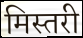
मिस्तरी